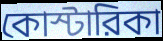
কোস্টারিকা